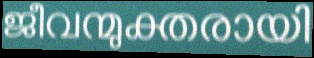
ജീവന്മുക്തരായി